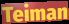
Teiman